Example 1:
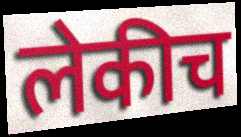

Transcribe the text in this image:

लेकीच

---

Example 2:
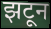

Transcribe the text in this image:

झटून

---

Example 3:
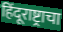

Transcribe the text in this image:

हिंदूराष्ट्राचा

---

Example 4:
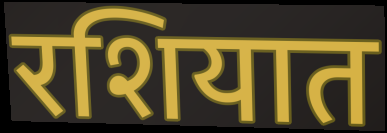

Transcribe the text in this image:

रशियात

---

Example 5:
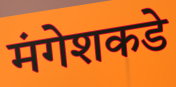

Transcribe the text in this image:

मंगेशकडे